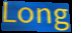
Long